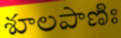
శూలపాణిః